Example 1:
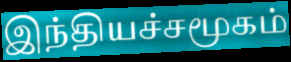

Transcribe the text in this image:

இந்தியச்சமூகம்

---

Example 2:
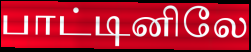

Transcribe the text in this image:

பாட்டினிலே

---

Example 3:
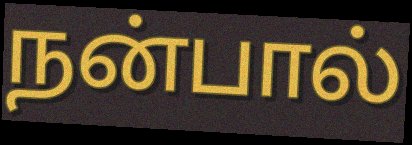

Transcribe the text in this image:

நன்பால்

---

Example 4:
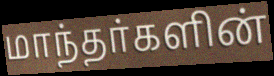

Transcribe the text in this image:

மாந்தர்களின்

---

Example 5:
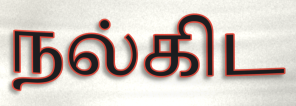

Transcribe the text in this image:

நல்கிட